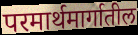
परमार्थमार्गातील